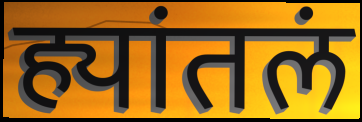
ह्यांतलं